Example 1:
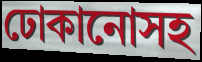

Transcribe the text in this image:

ঢোকানোসহ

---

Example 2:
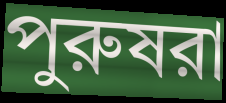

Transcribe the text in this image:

পুরুষরা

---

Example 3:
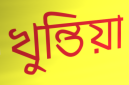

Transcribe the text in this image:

খুন্তিয়া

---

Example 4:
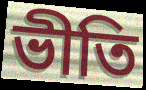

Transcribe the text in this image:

ভীতি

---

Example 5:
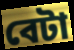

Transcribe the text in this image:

বেটা